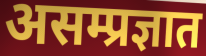
असम्प्रज्ञात